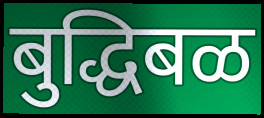
बुद्धिबळ